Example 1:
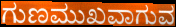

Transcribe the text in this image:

ಗುಣಮುಖವಾಗುವ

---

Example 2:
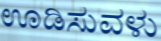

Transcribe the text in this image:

ಊಡಿಸುವಳು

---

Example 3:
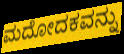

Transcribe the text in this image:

ಮದೋದಕವನ್ನು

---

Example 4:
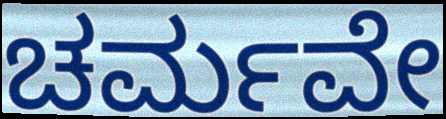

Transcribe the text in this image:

ಚರ್ಮವೇ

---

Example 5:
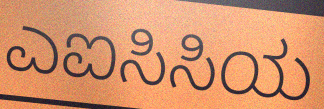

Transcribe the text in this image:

ಎಐಸಿಸಿಯ